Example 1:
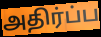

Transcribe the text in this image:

அதிர்ப்ப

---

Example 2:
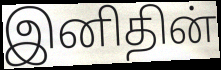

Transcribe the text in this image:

இனிதின்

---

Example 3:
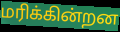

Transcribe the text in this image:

மரிக்கின்றன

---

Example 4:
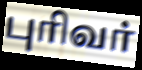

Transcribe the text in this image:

புரிவர்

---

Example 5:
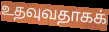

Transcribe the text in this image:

உதவுவதாகக்